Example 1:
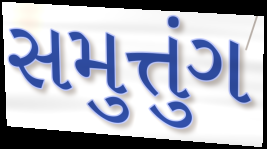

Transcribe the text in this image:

સમુત્તુંગ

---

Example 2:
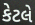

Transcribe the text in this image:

કેટલે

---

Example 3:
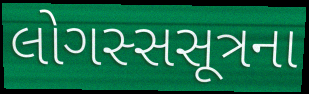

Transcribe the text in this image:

લોગસ્સસૂત્રના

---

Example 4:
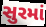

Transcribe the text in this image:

સુરમાં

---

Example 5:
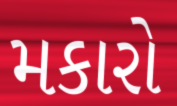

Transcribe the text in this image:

મકારો